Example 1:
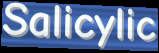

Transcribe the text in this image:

Salicylic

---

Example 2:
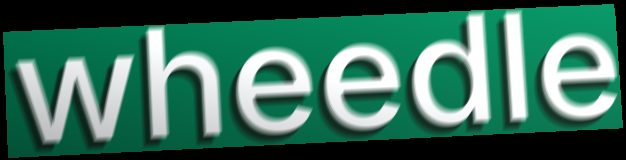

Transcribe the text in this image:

wheedle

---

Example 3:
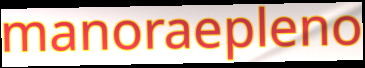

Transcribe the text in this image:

manoraepleno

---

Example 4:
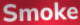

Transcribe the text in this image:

Smoke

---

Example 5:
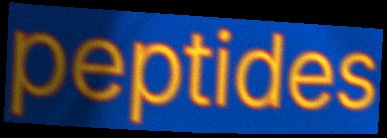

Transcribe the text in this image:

peptides